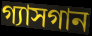
গ্যাসগান